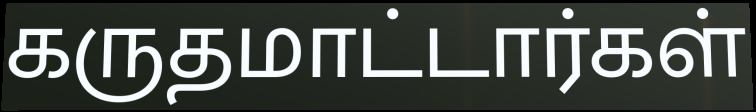
கருதமாட்டார்கள்